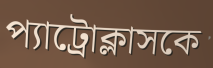
প্যাট্রোক্লাসকে